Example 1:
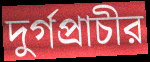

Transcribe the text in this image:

দুর্গপ্রাচীর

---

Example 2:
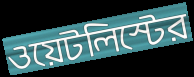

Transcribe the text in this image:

ওয়েটলিস্টের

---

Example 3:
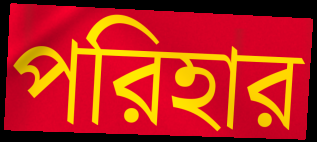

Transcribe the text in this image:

পরিহার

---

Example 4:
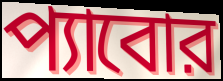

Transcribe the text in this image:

প্যাবোর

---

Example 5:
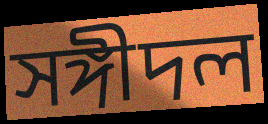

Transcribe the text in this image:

সঙ্গীদল